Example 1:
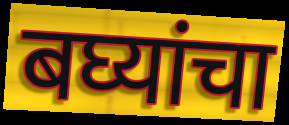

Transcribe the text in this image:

बघ्यांचा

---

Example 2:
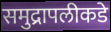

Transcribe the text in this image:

समुद्रापलीकडे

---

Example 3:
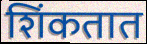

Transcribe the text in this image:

शिंकतात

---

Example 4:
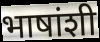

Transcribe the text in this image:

भाषांशी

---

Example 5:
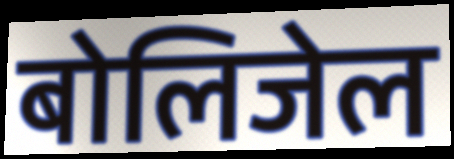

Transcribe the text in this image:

बोलिजेल